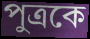
পুত্রকে